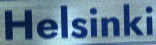
Helsinki